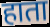
हाता